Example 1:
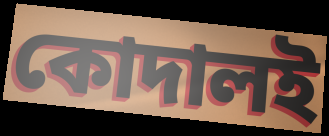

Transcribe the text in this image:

কোদালই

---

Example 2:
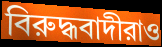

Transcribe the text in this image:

বিরুদ্ধবাদীরাও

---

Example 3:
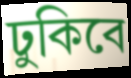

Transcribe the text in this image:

ঢুকিবে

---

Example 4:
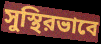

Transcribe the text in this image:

সুস্থিরভাবে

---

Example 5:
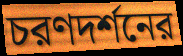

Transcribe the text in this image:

চরণদর্শনের